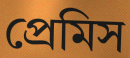
প্রেমিস